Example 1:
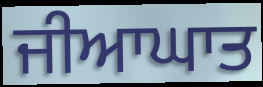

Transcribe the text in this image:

ਜੀਆਘਾਤ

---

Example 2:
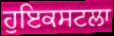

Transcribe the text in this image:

ਹੁਇਕਸਟਲਾ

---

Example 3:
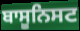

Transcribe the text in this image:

ਬਾਸੂਨਿਸਟ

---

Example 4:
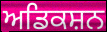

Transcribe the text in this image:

ਅਡਿਕਸ਼ਨ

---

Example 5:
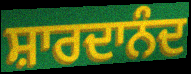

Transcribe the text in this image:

ਸ਼ਾਰਦਾਨੰਦ